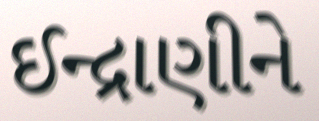
ઈન્દ્રાણીને